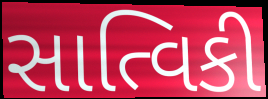
સાત્વિકી